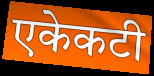
एकेकटी